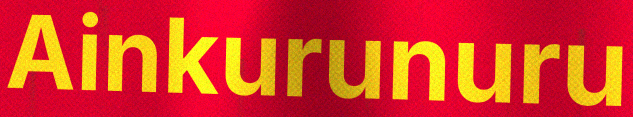
Ainkurunuru